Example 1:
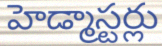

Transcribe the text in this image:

హెడ్మాస్టర్లు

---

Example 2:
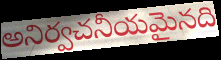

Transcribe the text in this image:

అనిర్వచనీయమైనది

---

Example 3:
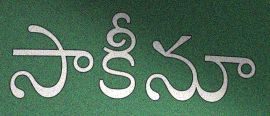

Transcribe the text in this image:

సాకీనూ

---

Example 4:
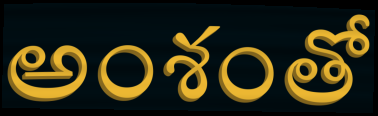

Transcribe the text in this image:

అంశంతో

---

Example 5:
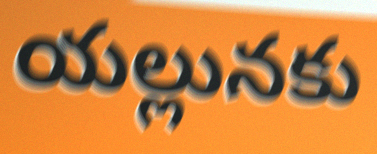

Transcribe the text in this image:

యల్లునకు